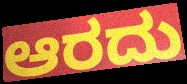
ಆರದು